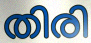
തിരി